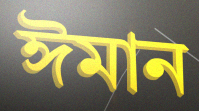
ঈমান